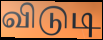
விடுடி